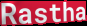
Rastha